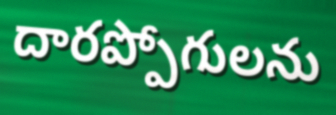
దారప్పోగులను